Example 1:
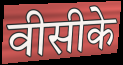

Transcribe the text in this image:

वीसीके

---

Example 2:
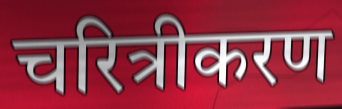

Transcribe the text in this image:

चरित्रीकरण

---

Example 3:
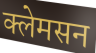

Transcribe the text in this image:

क्लेमसन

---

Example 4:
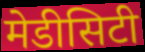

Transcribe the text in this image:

मेडीसिटी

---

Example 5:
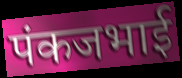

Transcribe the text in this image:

पंकजभाई